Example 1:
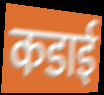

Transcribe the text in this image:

कडाई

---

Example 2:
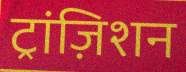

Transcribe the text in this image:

ट्रांज़िशन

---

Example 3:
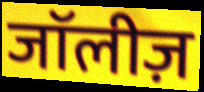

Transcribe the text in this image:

जॉलीज़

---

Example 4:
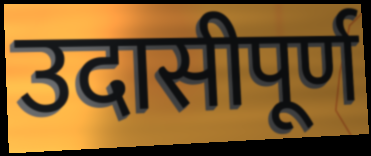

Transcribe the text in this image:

उदासीपूर्ण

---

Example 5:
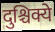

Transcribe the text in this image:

दुश्चिक्ये